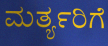
ಮರ್ತ್ಯರಿಗೆ